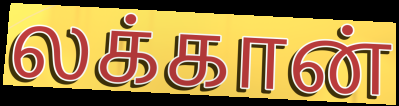
லக்கான்